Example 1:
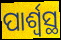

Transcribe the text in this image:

ପାର୍ଶ୍ବସ୍ଥ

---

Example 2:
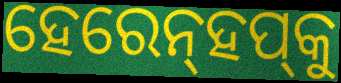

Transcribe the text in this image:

ହେରେନ୍‌ହପ୍‌କୁ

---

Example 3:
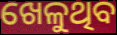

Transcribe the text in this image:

ଖେଳୁଥିବ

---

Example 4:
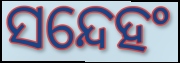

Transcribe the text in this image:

ସନ୍ଦେହଂ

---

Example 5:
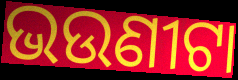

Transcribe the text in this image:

ଭଉଣୀଟା